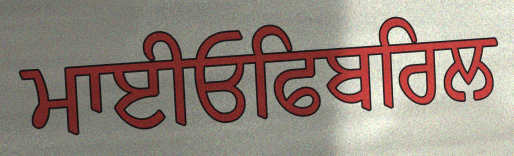
ਮਾਈਓਫਿਬਰਿਲ